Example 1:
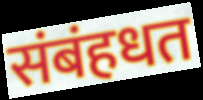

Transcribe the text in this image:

संबंहधत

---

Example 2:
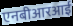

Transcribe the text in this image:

एनबीआरआई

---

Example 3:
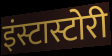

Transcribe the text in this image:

इंस्टास्टोरी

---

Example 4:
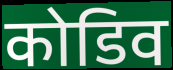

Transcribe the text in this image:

कोडिव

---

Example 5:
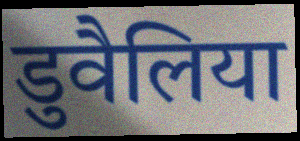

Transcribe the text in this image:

डुवैलिया